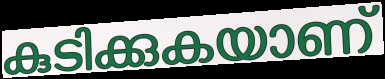
കുടിക്കുകയാണ്